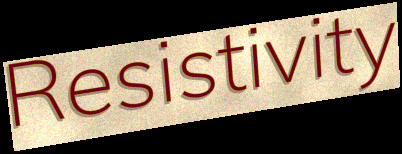
Resistivity